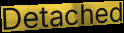
Detached